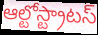
ఆల్టోస్ట్రాటస్